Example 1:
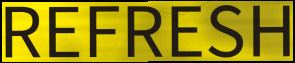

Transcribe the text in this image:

REFRESH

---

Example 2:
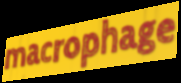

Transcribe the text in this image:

macrophage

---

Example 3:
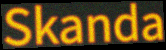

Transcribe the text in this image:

Skanda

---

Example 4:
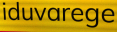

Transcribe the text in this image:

iduvarege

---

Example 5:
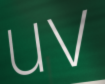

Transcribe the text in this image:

uv